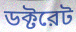
ডক্টরেট